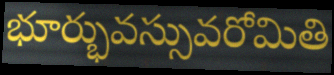
భూర్భువస్సువరోమితి